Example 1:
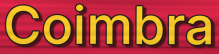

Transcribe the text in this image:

Coimbra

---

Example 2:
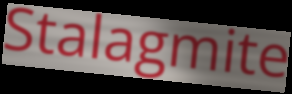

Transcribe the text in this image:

Stalagmite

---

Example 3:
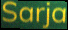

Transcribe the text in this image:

Sarja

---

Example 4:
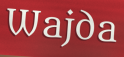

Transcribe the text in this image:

Wajda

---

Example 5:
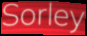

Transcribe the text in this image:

Sorley